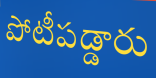
పోటీపడ్డారు